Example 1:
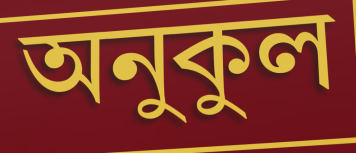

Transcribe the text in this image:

অনুকুল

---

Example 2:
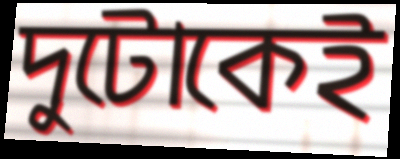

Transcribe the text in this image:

দুটোকেই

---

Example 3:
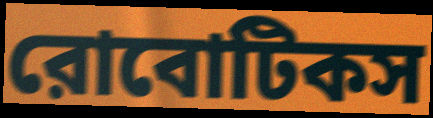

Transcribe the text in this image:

রোবোটিকস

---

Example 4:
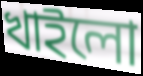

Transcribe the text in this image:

খাইলো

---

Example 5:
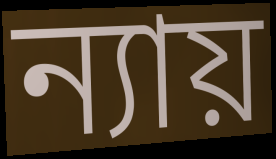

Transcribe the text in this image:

ন্যায়